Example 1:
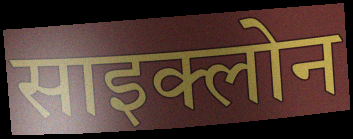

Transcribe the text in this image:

साइक्लोन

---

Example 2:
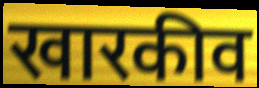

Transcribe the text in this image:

खारकीव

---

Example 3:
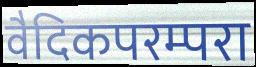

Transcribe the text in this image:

वैदिकपरम्परा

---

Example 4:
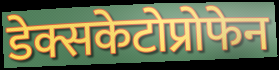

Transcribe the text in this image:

डेक्सकेटोप्रोफेन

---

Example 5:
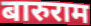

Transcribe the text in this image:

बारुराम